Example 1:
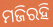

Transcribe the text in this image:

ମଜିରହି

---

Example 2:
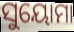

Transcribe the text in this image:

ସୁୟୋମା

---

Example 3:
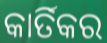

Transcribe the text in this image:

କାର୍ତିକର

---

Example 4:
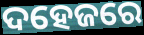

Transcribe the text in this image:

ଦହେଜରେ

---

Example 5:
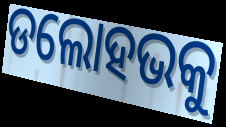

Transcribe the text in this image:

ଡଲୋହଭକୁ